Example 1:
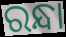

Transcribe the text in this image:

ରନ୍ଧା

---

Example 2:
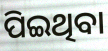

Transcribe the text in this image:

ପିଇଥିବା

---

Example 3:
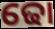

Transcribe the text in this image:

ଢୋ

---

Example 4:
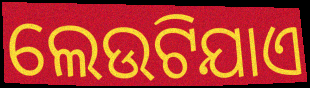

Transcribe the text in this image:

ଲେଉଟିଯାଏ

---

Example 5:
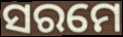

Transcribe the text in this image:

ସରମେ